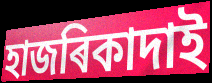
হাজৰিকাদাই